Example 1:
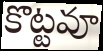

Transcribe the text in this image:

కొట్టవూ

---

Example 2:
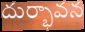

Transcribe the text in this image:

దుర్భావన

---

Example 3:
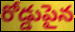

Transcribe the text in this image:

రోడ్డుపైన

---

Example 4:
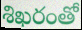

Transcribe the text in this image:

శిఖరంతో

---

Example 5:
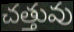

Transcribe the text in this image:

చత్తువు